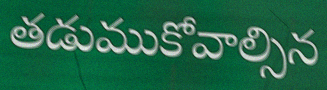
తడుముకోవాల్సిన